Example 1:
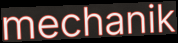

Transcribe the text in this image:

mechanik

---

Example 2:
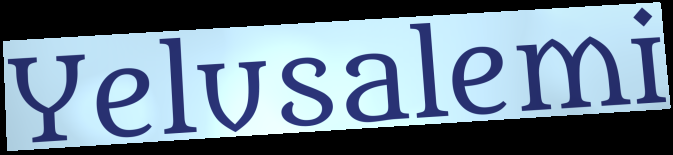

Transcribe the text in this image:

Yelusalemi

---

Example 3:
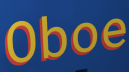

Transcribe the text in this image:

Oboe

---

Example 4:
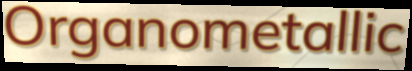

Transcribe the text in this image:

Organometallic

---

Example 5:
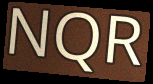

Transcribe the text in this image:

NQR